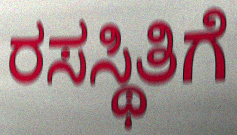
ರಸಸ್ಥಿತಿಗೆ